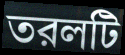
তরলটি